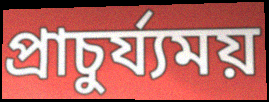
প্ৰাচুৰ্য্যময়